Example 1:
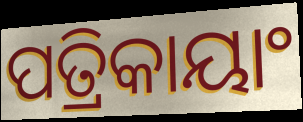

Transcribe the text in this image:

ପତ୍ରିକାୟାଂ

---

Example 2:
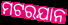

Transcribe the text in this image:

ମଟରଯାନ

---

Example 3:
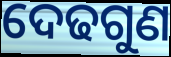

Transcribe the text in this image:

ଦେଢଗୁଣ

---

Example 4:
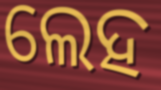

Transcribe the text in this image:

ଲେହ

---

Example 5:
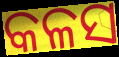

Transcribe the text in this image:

କଳସ